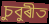
চুবুৰীত